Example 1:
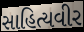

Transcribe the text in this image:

સાહિત્યવીર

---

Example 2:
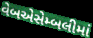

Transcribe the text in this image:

વેબએસેમ્બલીમાં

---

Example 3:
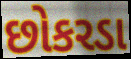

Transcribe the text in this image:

છોકરડા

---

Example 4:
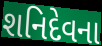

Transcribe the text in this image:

શનિદેવના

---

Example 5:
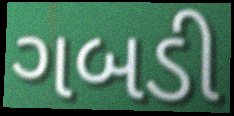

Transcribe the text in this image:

ગબડી